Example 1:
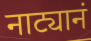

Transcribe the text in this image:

नाट्यानं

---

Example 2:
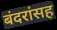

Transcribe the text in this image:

बंदरांसह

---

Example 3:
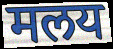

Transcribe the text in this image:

मलय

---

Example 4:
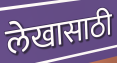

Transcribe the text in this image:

लेखासाठी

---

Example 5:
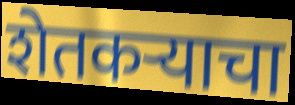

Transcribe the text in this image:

शेतकऱ्याचा